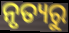
ନୃତ୍ୟରୁ